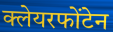
क्लेयरफोंटेन